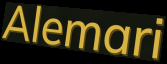
Alemari